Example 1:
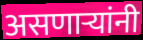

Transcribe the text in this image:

असणाऱ्यांनी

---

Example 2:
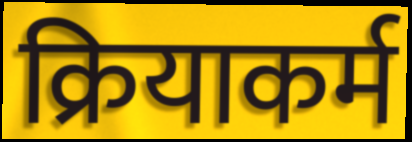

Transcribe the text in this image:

क्रियाकर्म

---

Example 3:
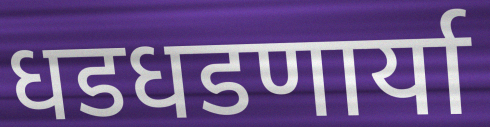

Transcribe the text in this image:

धडधडणार्या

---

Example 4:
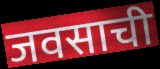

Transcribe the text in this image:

जवसाची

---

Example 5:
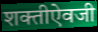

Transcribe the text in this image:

शक्तीऐवजी